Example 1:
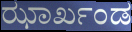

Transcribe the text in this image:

ಝಾರ್ಖಂಡ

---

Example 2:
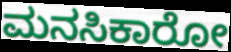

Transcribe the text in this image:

ಮನಸಿಕಾರೋ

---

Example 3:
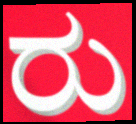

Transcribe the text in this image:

ರು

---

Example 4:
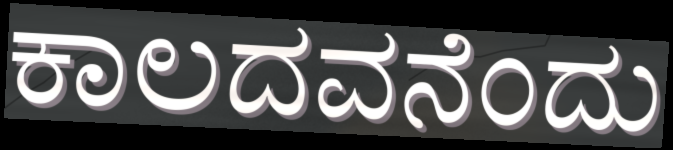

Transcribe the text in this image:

ಕಾಲದವನೆಂದು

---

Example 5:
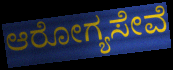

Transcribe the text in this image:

ಆರೋಗ್ಯಸೇವೆ